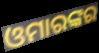
ଓମାରଙ୍କର